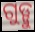
ଗୁଡ୍ଡୁ